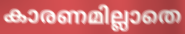
കാരണമില്ലാതെ